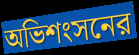
অভিশংসনের